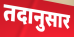
तदानुसार